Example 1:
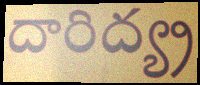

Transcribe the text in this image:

దారిద్య్ర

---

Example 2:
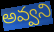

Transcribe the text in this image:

అవ్వని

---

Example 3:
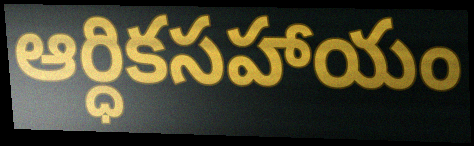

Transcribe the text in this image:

ఆర్ధికసహాయం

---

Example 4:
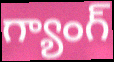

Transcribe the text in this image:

గ్యాంగ్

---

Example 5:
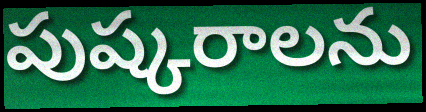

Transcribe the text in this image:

పుష్కరాలను